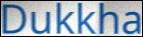
Dukkha